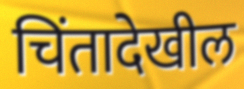
चिंतादेखील